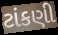
ટાંકણી